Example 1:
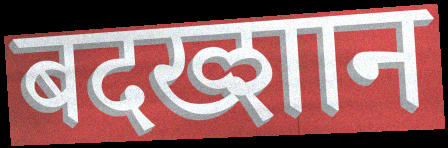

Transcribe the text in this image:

बदख्शान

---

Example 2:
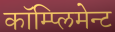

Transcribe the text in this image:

कॉम्प्लिमेन्ट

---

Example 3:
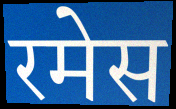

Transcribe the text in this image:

रमेस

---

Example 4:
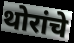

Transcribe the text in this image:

थोरांचे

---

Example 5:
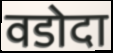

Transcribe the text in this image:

वडोदा